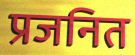
प्रजनित